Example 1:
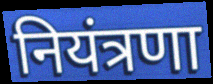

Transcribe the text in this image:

नियंत्रणा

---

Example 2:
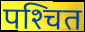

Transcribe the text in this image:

पश्चित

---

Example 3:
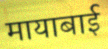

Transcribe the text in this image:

मायाबाई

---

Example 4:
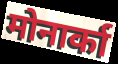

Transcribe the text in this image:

मोनार्का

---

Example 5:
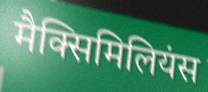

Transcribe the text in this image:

मैक्सिमिलियंस